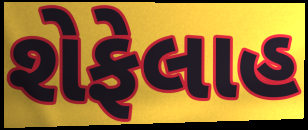
શેફેલાહ